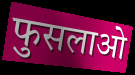
फुसलाओ